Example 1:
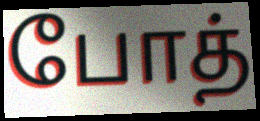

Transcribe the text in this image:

போத்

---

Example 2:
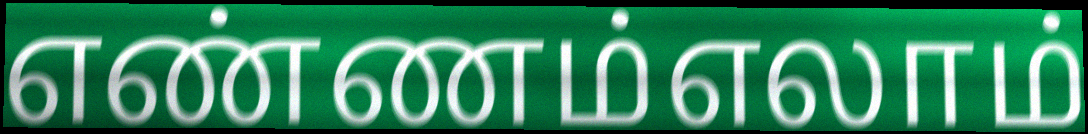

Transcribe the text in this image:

எண்ணம்எலாம்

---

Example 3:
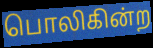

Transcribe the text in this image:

பொலிகின்ற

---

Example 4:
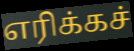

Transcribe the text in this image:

எரிக்கச்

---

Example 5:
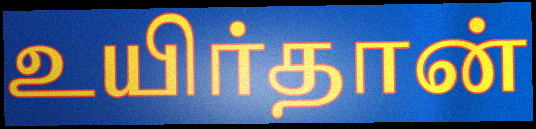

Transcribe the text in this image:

உயிர்தான்